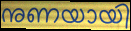
നുണയായി